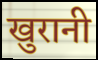
खुरानी